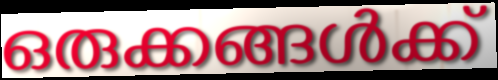
ഒരുക്കങ്ങൾക്ക്